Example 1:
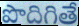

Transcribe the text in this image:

పొదిగితే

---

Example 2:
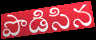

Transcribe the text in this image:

పొడిసిన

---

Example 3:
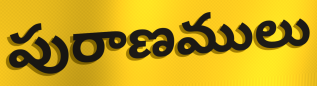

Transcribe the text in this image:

పురాణములు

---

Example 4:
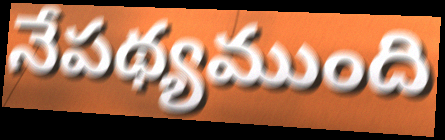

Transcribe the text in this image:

నేపథ్యముంది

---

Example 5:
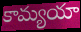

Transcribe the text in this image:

కామ్యయా